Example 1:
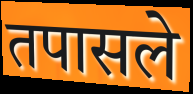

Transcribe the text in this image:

तपासले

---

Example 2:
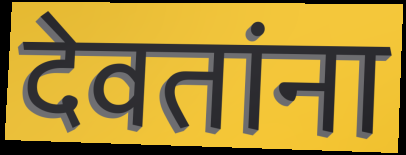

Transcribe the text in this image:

देवतांना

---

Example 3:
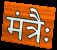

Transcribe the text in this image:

मंत्रैः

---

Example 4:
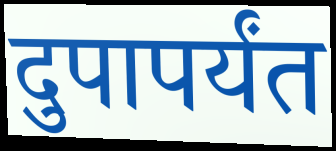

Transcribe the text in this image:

दुपापर्यंत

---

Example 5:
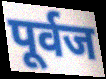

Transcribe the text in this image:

पूर्वज